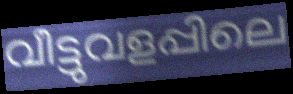
വീട്ടുവളപ്പിലെ